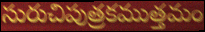
సురుచిపుత్రకముత్తమం